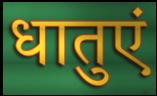
धातुएं